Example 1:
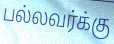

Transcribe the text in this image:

பல்லவர்க்கு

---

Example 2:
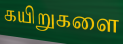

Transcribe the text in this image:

கயிறுகளை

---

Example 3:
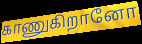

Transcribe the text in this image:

காணுகிறானோ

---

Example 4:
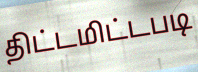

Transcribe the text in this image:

திட்டமிட்டபடி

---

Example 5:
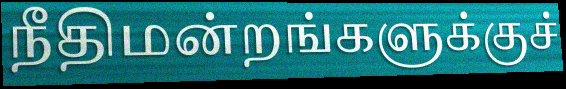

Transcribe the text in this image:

நீதிமன்றங்களுக்குச்